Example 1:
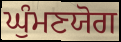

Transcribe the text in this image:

ਘੁੰਮਣਯੋਗ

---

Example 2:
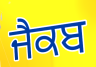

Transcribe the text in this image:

ਜੈਕਬ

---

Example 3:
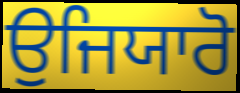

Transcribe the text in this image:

ਉਜਿਯਾਰੋ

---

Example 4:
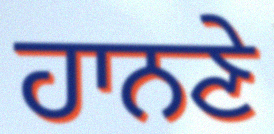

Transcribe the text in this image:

ਹਾਨਣੇ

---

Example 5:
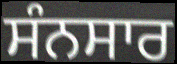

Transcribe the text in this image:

ਸੰਨਸਾਰ